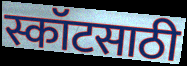
स्कॉटसाठी